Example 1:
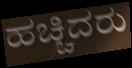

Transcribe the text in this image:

ಹಚ್ಚಿದರು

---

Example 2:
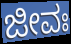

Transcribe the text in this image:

ಜೀವಃ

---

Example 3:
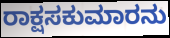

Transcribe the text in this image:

ರಾಕ್ಷಸಕುಮಾರನು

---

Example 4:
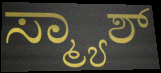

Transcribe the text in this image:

ಸ್ಮ್ಯಾಶ್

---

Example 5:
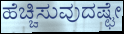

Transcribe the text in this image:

ಹೆಚ್ಚಿಸುವುದಷ್ಟೇ